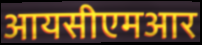
आयसीएमआर